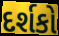
દર્શકો